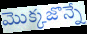
మొక్కజొన్నే